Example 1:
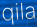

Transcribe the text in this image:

qila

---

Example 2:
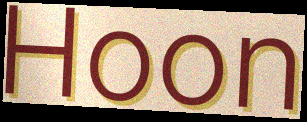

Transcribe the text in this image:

Hoon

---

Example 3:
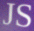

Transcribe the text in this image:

JS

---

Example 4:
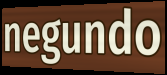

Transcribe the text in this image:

negundo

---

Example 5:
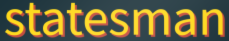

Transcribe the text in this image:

statesman